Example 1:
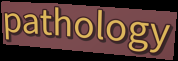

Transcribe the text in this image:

pathology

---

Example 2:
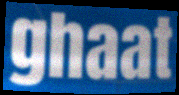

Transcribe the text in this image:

ghaat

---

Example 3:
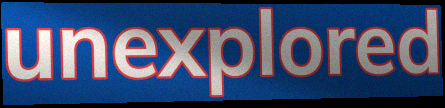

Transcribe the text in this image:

unexplored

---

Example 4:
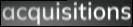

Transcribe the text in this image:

acquisitions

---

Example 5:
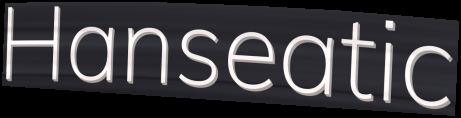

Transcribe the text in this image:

Hanseatic